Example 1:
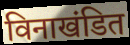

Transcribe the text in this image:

विनाखंडित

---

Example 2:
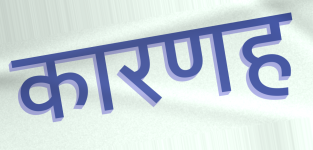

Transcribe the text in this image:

कारणह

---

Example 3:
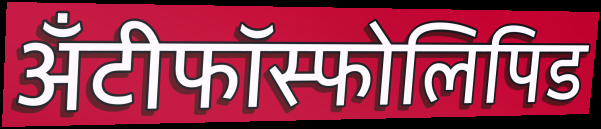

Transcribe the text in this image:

अँटीफॉस्फोलिपिड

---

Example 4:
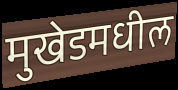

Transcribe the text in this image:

मुखेडमधील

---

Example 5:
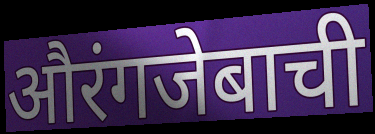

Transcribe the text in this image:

औरंगजेबाची